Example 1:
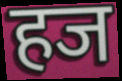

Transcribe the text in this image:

हज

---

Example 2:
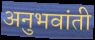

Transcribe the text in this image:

अनुभवांती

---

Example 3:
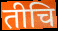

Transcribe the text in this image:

तीचि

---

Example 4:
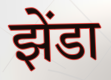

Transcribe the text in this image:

झेंडा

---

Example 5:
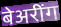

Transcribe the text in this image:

बेअरींग